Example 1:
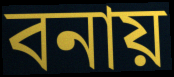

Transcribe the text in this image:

বনায়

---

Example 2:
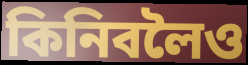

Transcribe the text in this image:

কিনিবলৈও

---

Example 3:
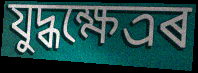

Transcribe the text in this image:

যুদ্ধক্ষেত্ৰৰ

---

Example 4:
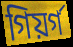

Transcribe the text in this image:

গিয়ৰ্গ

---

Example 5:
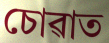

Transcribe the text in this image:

চোৱাত